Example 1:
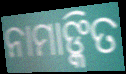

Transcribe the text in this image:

ନାମାଙ୍କିତ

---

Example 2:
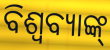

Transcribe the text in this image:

ବିଶ୍ବବ୍ୟାଙ୍କ୍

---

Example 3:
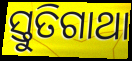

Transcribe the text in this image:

ସ୍ତୁତିଗାଥା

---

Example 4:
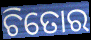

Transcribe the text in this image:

ଚିତୋର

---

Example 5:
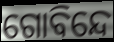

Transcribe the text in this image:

ଗୋବିନ୍ଦେ